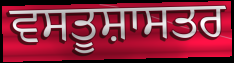
ਵਸਤੂਸ਼ਾਸਤਰ